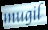
mugil